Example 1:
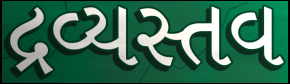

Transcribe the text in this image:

દ્રવ્યસ્તવ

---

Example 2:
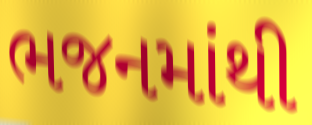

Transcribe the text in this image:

ભજનમાંથી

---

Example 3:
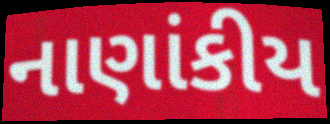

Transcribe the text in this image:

નાણાંકીય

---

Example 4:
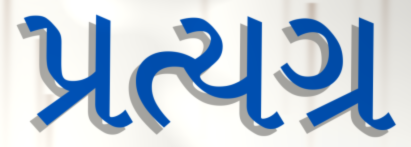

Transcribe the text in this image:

પ્રત્યગ્ર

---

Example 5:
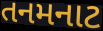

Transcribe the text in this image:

તનમનાટ